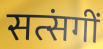
सत्संगीं